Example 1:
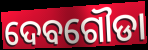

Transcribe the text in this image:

ଦେବଗୌଡା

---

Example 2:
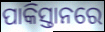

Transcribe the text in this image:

ପାକିସ୍ତାନରେ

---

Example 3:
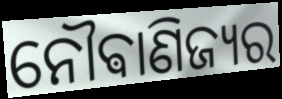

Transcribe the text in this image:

ନୌଵାଣିଜ୍ୟର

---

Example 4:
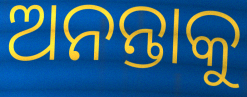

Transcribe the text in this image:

ଅନନ୍ତାକୁ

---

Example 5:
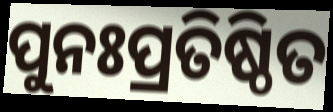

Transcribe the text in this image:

ପୁନଃପ୍ରତିଷ୍ଠିତ